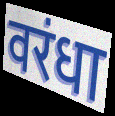
वरंधा